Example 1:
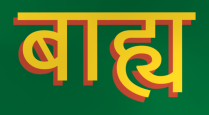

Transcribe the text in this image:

बाह्य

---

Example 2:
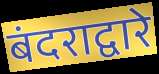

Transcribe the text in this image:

बंदराद्वारे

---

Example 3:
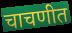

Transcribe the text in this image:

चाचणीत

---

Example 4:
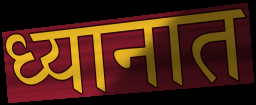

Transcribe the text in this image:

ध्यानात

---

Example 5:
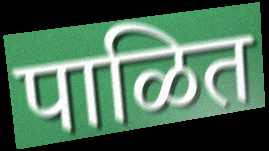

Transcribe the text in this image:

पाळित